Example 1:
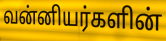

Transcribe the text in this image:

வன்னியர்களின்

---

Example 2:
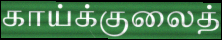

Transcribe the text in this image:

காய்க்குலைத்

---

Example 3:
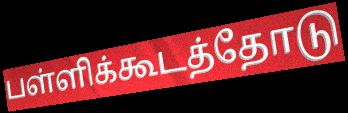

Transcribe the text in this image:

பள்ளிக்கூடத்தோடு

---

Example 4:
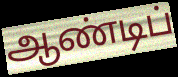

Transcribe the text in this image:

ஆண்டிப்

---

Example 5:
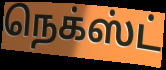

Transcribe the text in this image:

நெக்ஸ்ட்